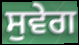
ਸੁਵੇਗ